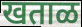
खताळ